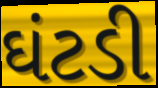
ઘંટડી